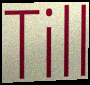
Till